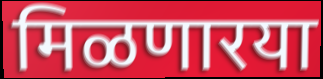
मिळणारया